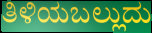
ತಿಳಿಯಬಲ್ಲುದು